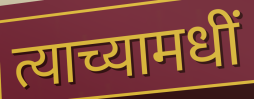
त्याच्यामधीं